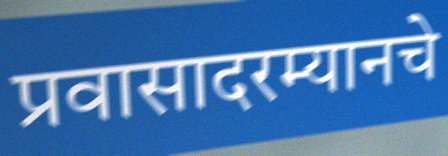
प्रवासादरम्यानचे